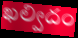
ఖల్విదం